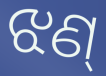
ଝଣ୍